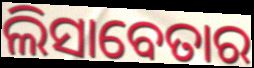
ଲିସାବେତାର